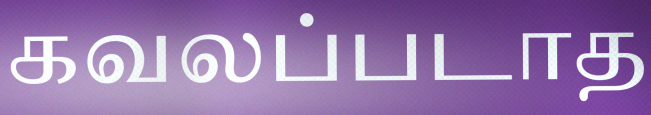
கவலப்படாத